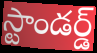
స్టాండర్డ్